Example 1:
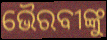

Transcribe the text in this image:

ଭୈରବୀଙ୍କୁ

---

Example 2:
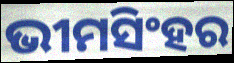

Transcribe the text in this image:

ଭୀମସିଂହର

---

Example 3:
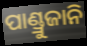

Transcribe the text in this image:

ପାଣ୍ଡ୍ରୁଜାନି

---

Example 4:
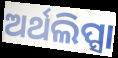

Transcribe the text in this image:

ଅର୍ଥଲିପ୍ସା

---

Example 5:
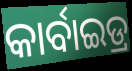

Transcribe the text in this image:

କାର୍ବାଇଡ୍ର